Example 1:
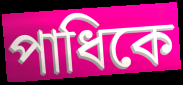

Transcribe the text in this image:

পাধিকে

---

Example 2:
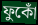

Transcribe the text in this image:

ফুকোঁ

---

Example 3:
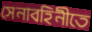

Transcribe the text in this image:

সেনাবহিনীতে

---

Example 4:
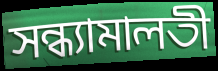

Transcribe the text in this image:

সন্ধ্যামালতী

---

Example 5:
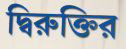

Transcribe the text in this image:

দ্বিরুক্তির